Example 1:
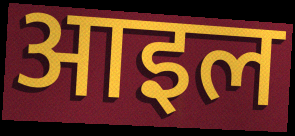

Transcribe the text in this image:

आइल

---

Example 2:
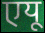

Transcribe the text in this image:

एयू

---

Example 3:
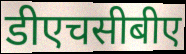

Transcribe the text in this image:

डीएचसीबीए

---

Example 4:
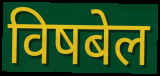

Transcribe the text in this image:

विषबेल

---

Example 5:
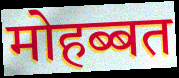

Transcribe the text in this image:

मोहब्बत